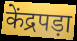
केंद्रपड़ा